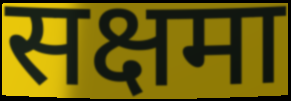
सक्षमा